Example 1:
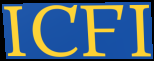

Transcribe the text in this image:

ICFI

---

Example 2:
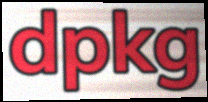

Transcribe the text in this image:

dpkg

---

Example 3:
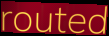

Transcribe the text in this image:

routed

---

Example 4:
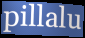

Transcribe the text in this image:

pillalu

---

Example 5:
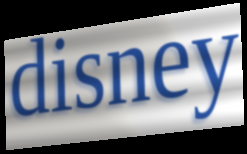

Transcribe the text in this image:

disney